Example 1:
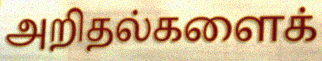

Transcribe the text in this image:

அறிதல்களைக்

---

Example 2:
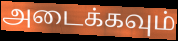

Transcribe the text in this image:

அடைக்கவும்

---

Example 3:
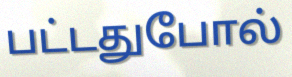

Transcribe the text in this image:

பட்டதுபோல்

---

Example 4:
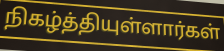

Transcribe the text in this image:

நிகழ்த்தியுள்ளார்கள்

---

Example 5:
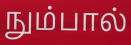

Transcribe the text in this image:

நும்பால்